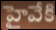
హైవేకి